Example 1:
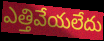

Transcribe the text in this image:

ఎత్తివేయలేదు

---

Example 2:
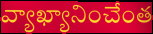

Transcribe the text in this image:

వ్యాఖ్యానించేంత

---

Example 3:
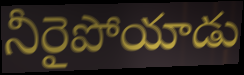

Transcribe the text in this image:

నీరైపోయాడు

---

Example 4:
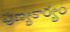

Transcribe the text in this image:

పుణ్యకార్యం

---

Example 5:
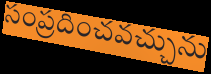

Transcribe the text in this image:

సంప్రదించవచ్చును